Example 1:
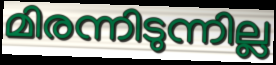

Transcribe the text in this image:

മിരന്നിടുന്നില്ല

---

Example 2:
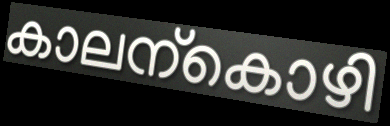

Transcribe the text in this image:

കാലന്കൊഴി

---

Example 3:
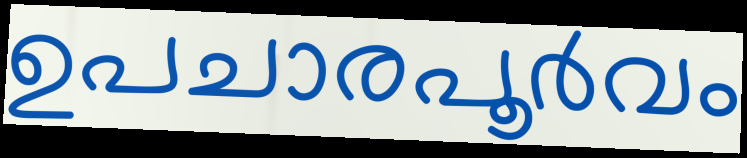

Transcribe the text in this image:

ഉപചാരപൂർവം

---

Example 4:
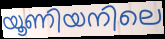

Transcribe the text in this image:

യൂണിയനിലെ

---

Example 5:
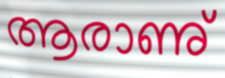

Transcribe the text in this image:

ആരാണു്